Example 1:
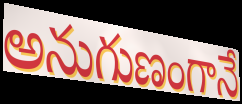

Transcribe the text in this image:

అనుగుణంగానే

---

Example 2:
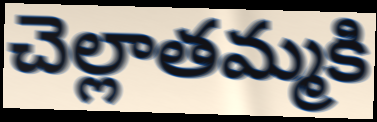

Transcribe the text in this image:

చెల్లాతమ్మకి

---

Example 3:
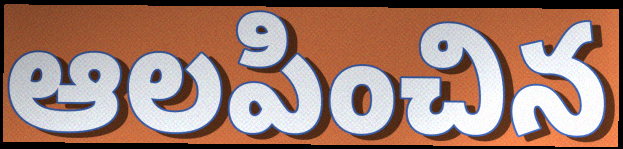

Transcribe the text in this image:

ఆలపించిన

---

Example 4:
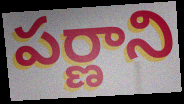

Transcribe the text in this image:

పర్ణాని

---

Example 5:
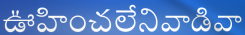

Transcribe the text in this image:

ఊహించలేనివాడివా